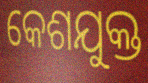
କେଶଯୁକ୍ତ